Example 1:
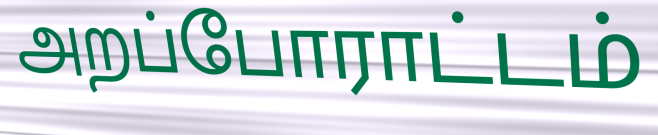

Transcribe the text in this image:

அறப்போராட்டம்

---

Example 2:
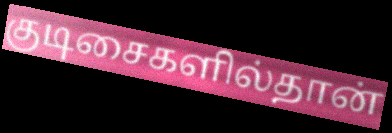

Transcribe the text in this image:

குடிசைகளில்தான்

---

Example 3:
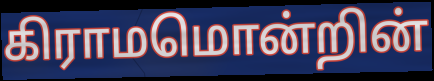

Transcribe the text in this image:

கிராமமொன்றின்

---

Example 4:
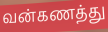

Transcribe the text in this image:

வன்கணத்து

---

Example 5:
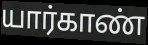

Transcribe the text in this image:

யார்காண்